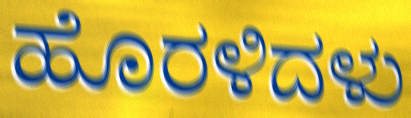
ಹೊರಳಿದಳು